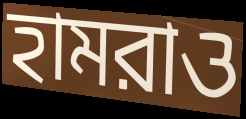
হামরাও